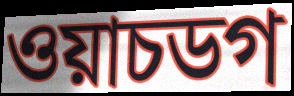
ওয়াচডগ